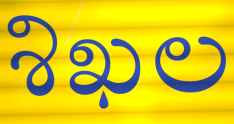
శిఖల